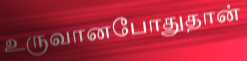
உருவானபோதுதான்